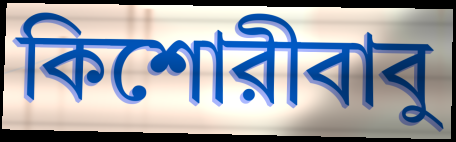
কিশোরীবাবু